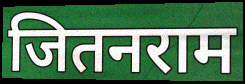
जितनराम